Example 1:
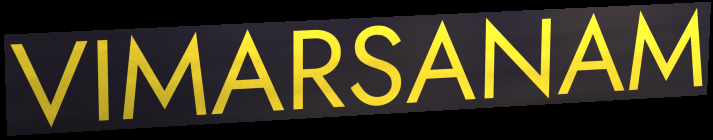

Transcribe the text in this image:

VIMARSANAM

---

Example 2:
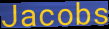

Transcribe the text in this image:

Jacobs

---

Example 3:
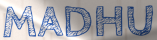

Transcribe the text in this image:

MADHU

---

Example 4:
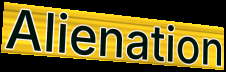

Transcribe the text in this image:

Alienation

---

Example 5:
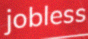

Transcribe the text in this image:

jobless